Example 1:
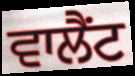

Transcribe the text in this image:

ਵਾਲੈਂਟ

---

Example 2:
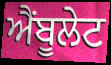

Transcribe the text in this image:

ਐਂਬੂਲੇਟ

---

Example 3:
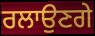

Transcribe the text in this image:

ਰਲਾਉਣਗੇ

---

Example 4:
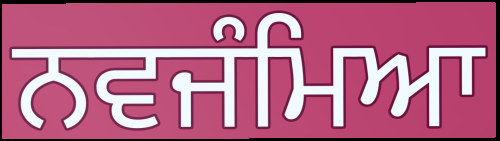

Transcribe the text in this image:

ਨਵਜੰਮਿਆ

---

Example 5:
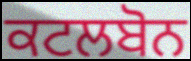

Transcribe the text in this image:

ਕਟਲਬੋਨ